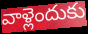
వాళ్లెందుకు